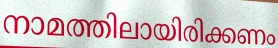
നാമത്തിലായിരിക്കണം